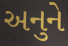
અનુને